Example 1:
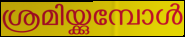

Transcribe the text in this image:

ശ്രമിയ്ക്കുമ്പോൾ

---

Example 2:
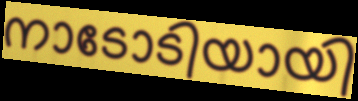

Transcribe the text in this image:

നാടോടിയായി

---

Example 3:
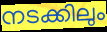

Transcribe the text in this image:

നടക്കിലും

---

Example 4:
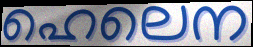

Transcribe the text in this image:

ഹെലെന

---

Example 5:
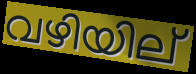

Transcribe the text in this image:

വഴിയില്